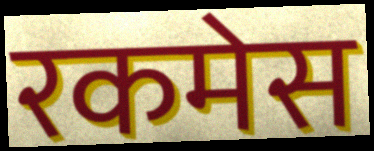
रकमेस